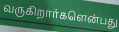
வருகிறார்களென்பது